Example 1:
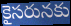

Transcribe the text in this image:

కైసరునకు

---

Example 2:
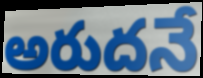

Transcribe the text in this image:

అరుదనే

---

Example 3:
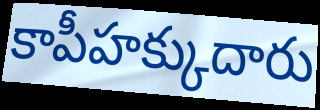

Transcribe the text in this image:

కాపీహక్కుదారు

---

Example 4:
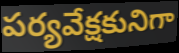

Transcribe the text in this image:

పర్యవేక్షకునిగా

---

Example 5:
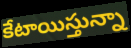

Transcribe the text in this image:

కేటాయిస్తున్నా